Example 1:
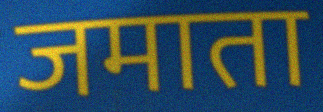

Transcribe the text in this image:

जमाता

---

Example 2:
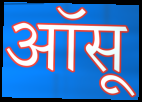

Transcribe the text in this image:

ऑसू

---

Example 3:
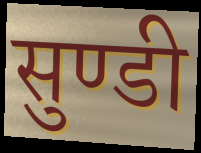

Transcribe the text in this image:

सुण्डी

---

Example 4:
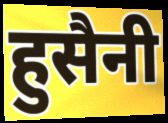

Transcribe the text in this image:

हुसैनी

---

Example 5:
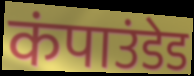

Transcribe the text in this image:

कंपाउंडेड